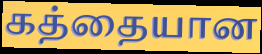
கத்தையான